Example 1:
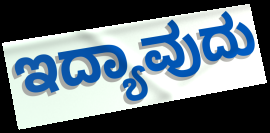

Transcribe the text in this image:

ಇದ್ಯಾವುದು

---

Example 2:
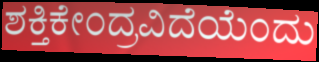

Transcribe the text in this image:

ಶಕ್ತಿಕೇಂದ್ರವಿದೆಯೆಂದು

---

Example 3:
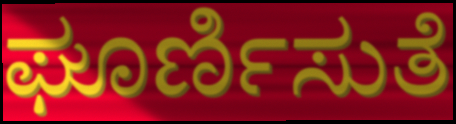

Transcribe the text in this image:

ಘೂರ್ಣಿಸುತೆ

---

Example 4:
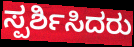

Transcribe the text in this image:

ಸ್ಪರ್ಶಿಸಿದರು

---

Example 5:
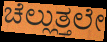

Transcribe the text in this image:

ಚೆಲ್ಲುತ್ತಲೇ